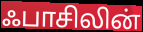
ஃபாசிலின்